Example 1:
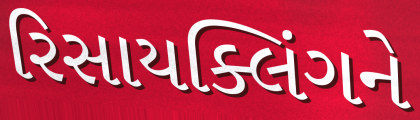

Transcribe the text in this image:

રિસાયક્લિંગને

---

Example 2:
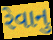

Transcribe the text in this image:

રેવાનુ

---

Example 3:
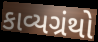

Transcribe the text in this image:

કાવ્યગ્રંથો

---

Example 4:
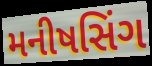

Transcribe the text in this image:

મનીષસિંગ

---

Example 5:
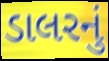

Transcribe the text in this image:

ડાલરનું